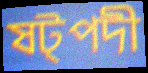
ষট্‌পদী